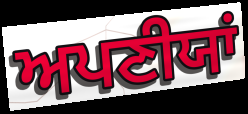
ਅਪਣੀਯਾਂ